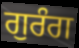
ਗੁਰੰਗ